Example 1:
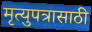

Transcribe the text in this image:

मृत्युपत्रासाठी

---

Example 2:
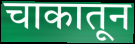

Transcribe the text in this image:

चाकातून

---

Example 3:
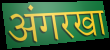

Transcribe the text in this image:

अंगरखा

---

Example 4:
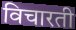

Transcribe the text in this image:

विचारती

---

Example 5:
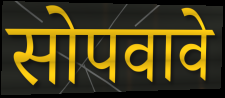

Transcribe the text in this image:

सोपवावे